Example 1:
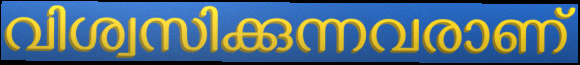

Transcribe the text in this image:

വിശ്വസിക്കുന്നവരാണ്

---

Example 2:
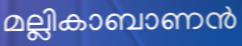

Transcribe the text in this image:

മല്ലികാബാണൻ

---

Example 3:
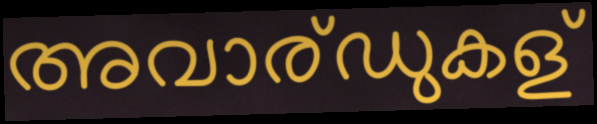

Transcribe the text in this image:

അവാര്ഡുകള്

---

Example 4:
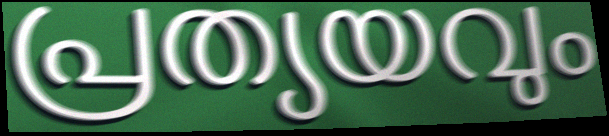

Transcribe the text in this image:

പ്രത്യയവും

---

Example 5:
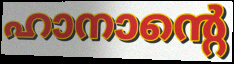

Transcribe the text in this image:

ഹാനാന്റെ